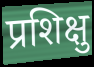
प्रशिक्षु